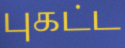
புகட்ட